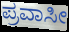
ಪ್ರವಾಸೀ